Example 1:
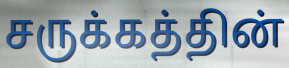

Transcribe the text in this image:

சருக்கத்தின்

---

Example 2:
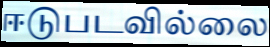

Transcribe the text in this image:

ஈடுபடவில்லை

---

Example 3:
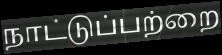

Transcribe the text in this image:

நாட்டுப்பற்றை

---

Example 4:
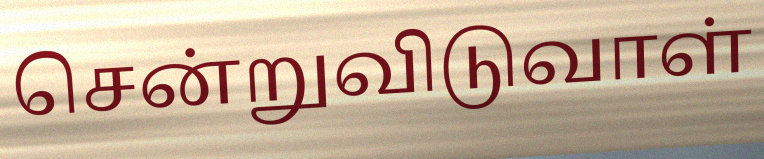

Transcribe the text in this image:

சென்றுவிடுவாள்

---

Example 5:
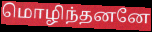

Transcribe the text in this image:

மொழிந்தனனே